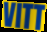
VITT